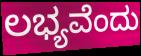
ಲಭ್ಯವೆಂದು